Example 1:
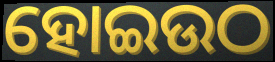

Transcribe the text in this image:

ହୋଇଉଠ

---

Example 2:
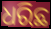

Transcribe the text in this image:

ଧରିଛ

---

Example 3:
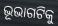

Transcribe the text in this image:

ଭୂଭାଗଟିକୁ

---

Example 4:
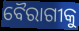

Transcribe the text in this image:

ବୈରାଗୀକୁ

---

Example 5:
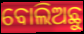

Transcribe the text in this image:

ବୋଲିଅଛୁ